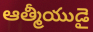
ఆత్మీయుడై